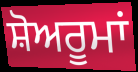
ਸ਼ੋਅਰੂਮਾਂ